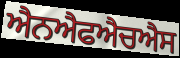
ਐਨਐਫਐਚਐਸ